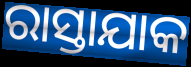
ରାସ୍ତାଯାକ